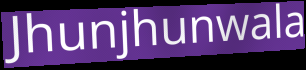
Jhunjhunwala